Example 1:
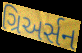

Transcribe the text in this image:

ગ્રિઅર્સન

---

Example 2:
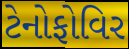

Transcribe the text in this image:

ટેનોફોવિર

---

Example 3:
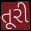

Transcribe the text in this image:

તૂરી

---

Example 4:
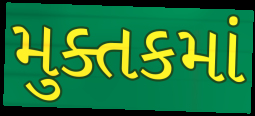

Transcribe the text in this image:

મુક્તકમાં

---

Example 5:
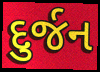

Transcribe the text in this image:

દુર્જન